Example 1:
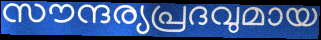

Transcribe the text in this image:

സൗന്ദര്യപ്രദവുമായ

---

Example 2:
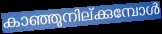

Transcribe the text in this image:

കാഞ്ഞുനില്ക്കുമ്പോൾ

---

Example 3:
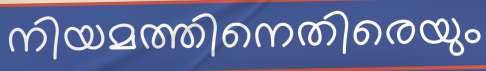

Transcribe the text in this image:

നിയമത്തിനെതിരെയും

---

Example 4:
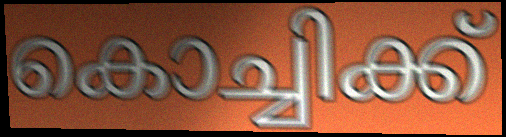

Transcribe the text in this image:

കൊച്ചിക്ക്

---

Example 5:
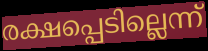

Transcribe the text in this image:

രക്ഷപ്പെടില്ലെന്ന്